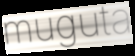
muguta